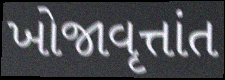
ખોજાવૃત્તાંત